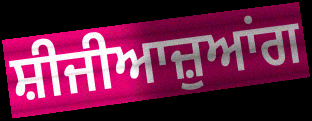
ਸ਼ੀਜੀਆਜ਼ੁਆਂਗ